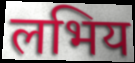
लभिय